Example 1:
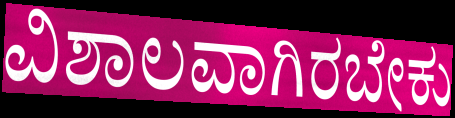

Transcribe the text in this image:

ವಿಶಾಲವಾಗಿರಬೇಕು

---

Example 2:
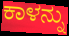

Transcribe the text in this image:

ಕಾಳನ್ನು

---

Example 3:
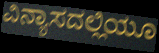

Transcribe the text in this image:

ವಿನ್ಯಾಸದಲ್ಲಿಯೂ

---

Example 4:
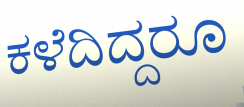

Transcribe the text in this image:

ಕಳೆದಿದ್ದರೂ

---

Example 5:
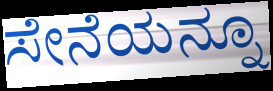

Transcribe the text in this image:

ಸೇನೆಯನ್ನೂ